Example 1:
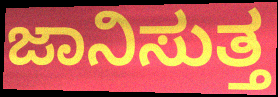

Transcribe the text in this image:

ಜಾನಿಸುತ್ತ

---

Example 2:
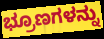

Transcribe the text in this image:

ಭ್ರೂಣಗಳನ್ನು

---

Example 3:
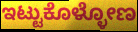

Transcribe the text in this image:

ಇಟ್ಟುಕೊಳ್ಳೋಣ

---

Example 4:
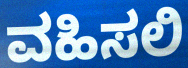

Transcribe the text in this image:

ವಹಿಸಲಿ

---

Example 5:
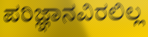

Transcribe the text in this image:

ಪರಿಜ್ಞಾನವಿರಲಿಲ್ಲ